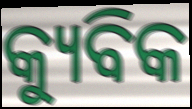
କ୍ୟୁବିକ